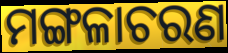
ମଙ୍ଗଳାଚରଣ